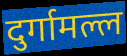
दुर्गामल्ल